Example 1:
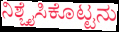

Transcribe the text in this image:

ನಿಶ್ಚೈಸಿಕೊಟ್ಟನು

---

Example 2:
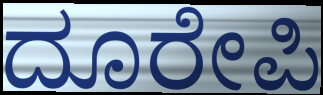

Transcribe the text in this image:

ದೂರೇಪಿ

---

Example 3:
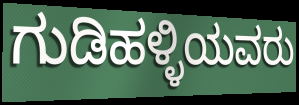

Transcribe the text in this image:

ಗುಡಿಹಳ್ಳಿಯವರು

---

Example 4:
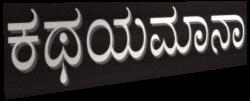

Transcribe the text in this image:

ಕಥಯಮಾನಾ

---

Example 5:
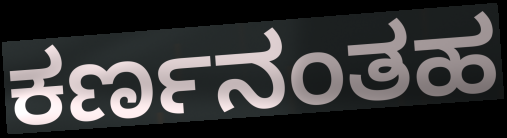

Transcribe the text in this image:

ಕರ್ಣನಂತಹ